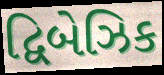
દ્વિબેઝિક